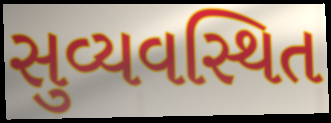
સુવ્યવસ્થિત